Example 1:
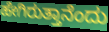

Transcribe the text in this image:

ಹೇಗಿರುತ್ತಾನೆಂದು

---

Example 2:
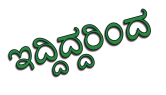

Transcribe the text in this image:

ಇದ್ದಿದ್ದರಿಂದ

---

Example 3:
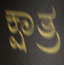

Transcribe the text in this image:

ಕ್ಷಾತ್ರ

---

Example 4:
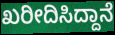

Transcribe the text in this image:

ಖರೀದಿಸಿದ್ದಾನೆ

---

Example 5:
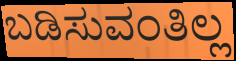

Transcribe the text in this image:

ಬಡಿಸುವಂತಿಲ್ಲ